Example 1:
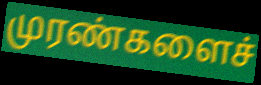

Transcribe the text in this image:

முரண்களைச்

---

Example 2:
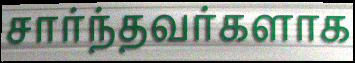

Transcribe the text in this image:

சார்ந்தவர்களாக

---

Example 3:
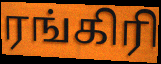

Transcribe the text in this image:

ரங்கிரி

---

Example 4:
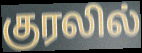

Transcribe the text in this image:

குரலில்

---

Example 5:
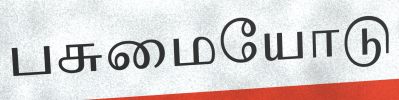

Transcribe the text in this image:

பசுமையோடு